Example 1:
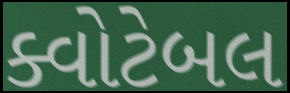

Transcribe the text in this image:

ક્વોટેબલ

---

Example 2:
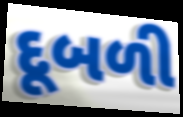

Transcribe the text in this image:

દૂબળી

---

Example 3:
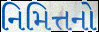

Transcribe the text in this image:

નિમિત્તનો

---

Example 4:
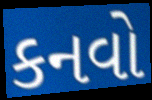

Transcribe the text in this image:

કનવો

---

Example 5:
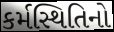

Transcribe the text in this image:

કર્મસ્થિતિનો